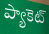
ప్యాకెట్